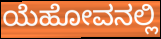
ಯೆಹೋವನಲ್ಲಿ